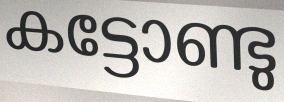
കട്ടോണ്ടു